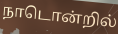
நாடொன்றில்